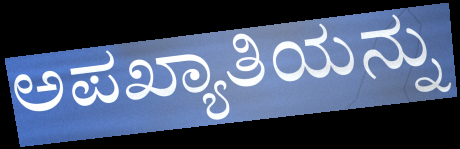
ಅಪಖ್ಯಾತಿಯನ್ನು